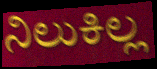
ನಿಲುಕಿಲ್ಲ